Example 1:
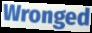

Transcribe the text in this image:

Wronged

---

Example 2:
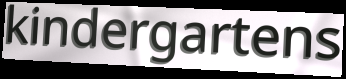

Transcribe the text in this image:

kindergartens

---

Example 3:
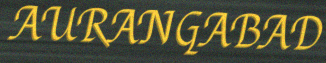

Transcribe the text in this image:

AURANGABAD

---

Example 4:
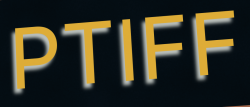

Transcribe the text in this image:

PTIFF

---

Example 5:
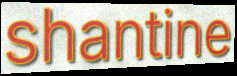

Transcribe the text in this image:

shantine